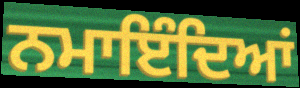
ਨਮਾਇੰਦਿਆਂ